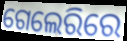
ଗେଲେରିରେ